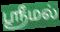
ஶ்ரீமல்